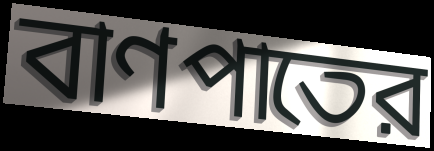
বাণপাতের